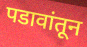
पडावांतून